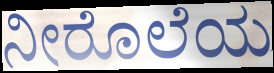
ನೀರೊಲೆಯ